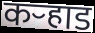
कऱ्हाड